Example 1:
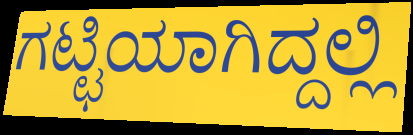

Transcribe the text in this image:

ಗಟ್ಟಿಯಾಗಿದ್ದಲ್ಲಿ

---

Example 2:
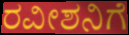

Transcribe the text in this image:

ರವೀಶನಿಗೆ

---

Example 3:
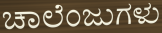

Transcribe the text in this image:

ಚಾಲೆಂಜುಗಳು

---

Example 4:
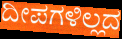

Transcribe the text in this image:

ದೀಪಗಳಿಲ್ಲದ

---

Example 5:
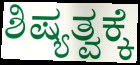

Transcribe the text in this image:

ಶಿಷ್ಯತ್ವಕ್ಕೆ